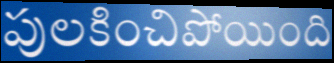
పులకించిపోయింది